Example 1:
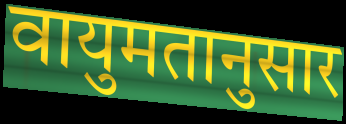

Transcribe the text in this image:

वायुमतानुसार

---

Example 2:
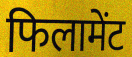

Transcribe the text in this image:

फिलामेंट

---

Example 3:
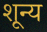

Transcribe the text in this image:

शून्य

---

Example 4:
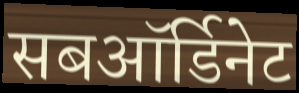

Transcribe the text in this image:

सबऑर्डिनेट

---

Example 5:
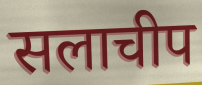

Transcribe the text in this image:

सलाचीप